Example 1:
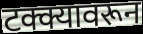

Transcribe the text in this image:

टक्क्यावरून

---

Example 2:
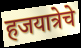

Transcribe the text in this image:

हजयात्रेचे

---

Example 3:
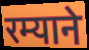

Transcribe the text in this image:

रम्याने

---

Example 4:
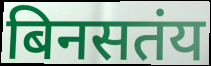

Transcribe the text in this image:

बिनसतंय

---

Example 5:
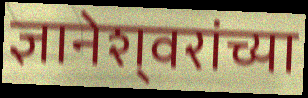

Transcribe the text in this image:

ज्ञानेश्वरांच्या